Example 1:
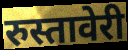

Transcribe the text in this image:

रुस्तावेरी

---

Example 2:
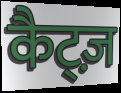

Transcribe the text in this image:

कैट्ज़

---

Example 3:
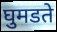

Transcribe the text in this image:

घुमडते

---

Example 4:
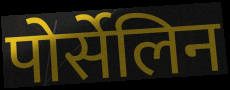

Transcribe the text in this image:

पोर्सेलिन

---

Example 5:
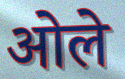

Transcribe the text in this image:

ओले